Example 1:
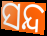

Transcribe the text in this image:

ସନ୍ଦ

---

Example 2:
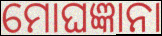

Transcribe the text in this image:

ମୋଘଜ୍ଞାନା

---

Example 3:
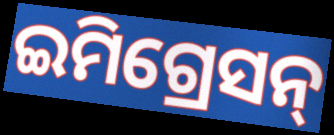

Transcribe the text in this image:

ଇମିଗ୍ରେସନ୍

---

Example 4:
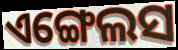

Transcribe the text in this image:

ଏଙ୍ଗେଲସ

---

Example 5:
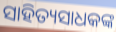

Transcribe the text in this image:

ସାହିତ୍ୟସାଧକଙ୍କ